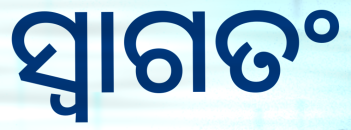
ସ୍ୱାଗତଂ